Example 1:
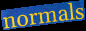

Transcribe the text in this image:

normals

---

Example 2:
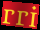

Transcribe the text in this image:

rri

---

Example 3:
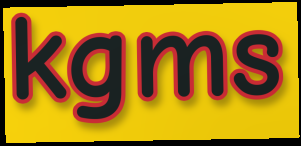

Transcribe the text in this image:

kgms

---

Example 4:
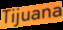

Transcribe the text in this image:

Tijuana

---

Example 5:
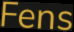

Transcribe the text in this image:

Fens